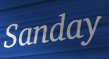
Sanday